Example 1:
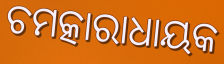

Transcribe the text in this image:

ଚମତ୍କାରାଧାୟକ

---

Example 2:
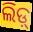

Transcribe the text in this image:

ଲିଡ଼୍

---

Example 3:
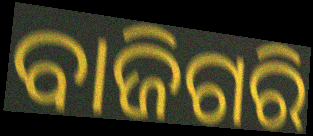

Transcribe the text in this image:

ବାଜିଗରି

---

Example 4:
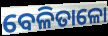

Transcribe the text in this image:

ବେଳିତାଳୋ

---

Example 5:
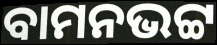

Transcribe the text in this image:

ବାମନଭଟ୍ଟ